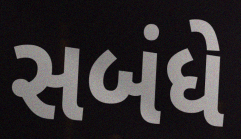
સબંધે